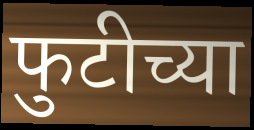
फुटीच्या